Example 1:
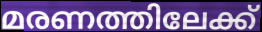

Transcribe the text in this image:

മരണത്തിലേക്ക്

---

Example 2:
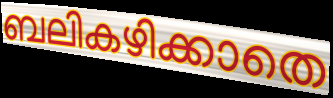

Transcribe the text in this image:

ബലികഴിക്കാതെ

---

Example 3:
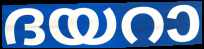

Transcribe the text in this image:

ദയറാ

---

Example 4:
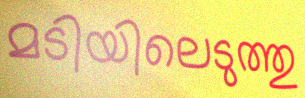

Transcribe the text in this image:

മടിയിലെടുത്തു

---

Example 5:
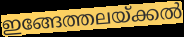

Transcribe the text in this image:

ഇങ്ങേത്തലയ്ക്കൽ